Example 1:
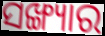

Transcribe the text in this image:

ସଙ୍ଖ୍ୟାର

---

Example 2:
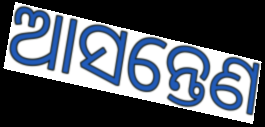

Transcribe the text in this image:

ଆସନ୍ତେଣ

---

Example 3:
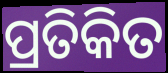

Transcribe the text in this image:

ପ୍ରତିକିତ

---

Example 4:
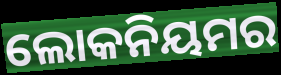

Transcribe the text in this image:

ଲୋକନିୟମର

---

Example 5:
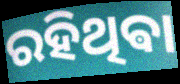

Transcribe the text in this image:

ରହିଥିଵା